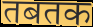
तबतक